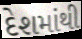
દેશમાંથી